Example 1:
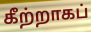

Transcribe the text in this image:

கீற்றாகப்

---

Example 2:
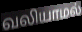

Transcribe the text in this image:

வலியாமல்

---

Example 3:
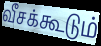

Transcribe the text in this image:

வீசக்கூடும்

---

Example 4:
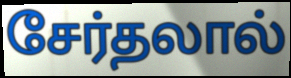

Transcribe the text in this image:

சேர்தலால்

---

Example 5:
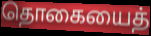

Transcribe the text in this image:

தொகையைத்